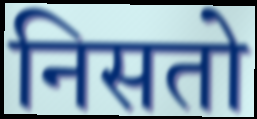
निसतो